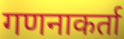
गणनाकर्ता